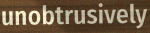
unobtrusively